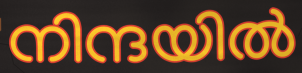
നിന്ദയിൽ